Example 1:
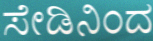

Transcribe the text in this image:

ಸೇಡಿನಿಂದ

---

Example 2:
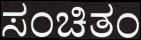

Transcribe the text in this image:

ಸಂಚಿತಂ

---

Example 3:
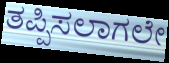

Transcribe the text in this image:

ತಪ್ಪಿಸಲಾಗಲೇ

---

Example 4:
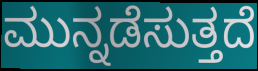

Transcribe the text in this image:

ಮುನ್ನಡೆಸುತ್ತದೆ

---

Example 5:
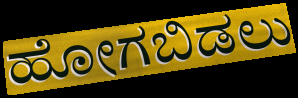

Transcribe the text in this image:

ಹೋಗಬಿಡಲು